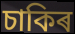
চাকিৰ